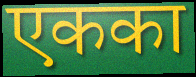
एकका